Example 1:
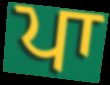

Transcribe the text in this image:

ਪਾ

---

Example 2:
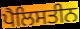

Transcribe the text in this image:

ਪੈਲਿਸਤੀਨ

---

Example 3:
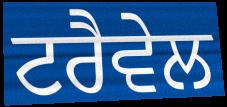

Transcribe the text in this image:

ਟਰੈਵੇਲ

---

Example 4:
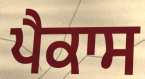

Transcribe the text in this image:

ਪੈਕਾਸ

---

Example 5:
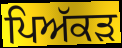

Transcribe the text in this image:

ਪਿਅੱਕੜ